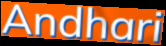
Andhari